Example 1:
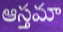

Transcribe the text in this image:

ఆస్తమా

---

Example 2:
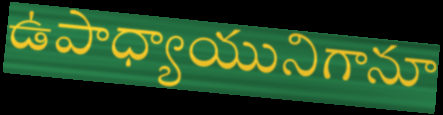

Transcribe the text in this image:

ఉపాధ్యాయునిగానూ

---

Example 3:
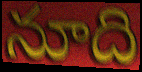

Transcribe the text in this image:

నూది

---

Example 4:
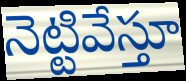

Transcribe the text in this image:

నెట్టివేస్తూ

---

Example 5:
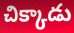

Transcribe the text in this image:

చిక్కాడు